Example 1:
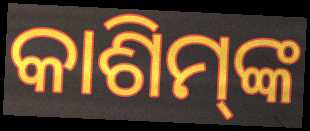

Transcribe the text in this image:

କାଶିମ୍‍ଙ୍କ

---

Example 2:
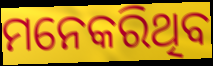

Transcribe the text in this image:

ମନେକରିଥିବ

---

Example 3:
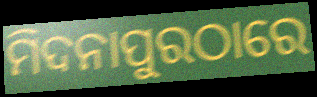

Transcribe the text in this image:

ମିଦନାପୁରଠାରେ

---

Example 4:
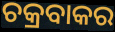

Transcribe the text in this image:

ଚକ୍ରବାକର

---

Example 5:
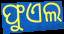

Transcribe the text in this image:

ଫୁଏଲ